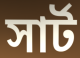
সার্ট